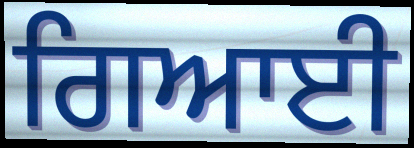
ਗਿਆਈ